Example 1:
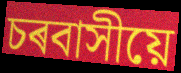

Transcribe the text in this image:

চৰবাসীয়ে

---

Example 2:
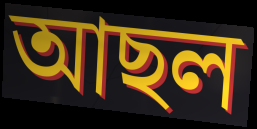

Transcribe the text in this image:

আছল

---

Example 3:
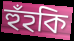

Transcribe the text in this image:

হুঁহকি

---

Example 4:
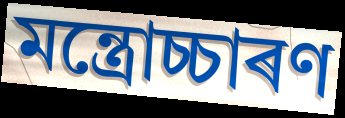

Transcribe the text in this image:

মন্ত্ৰোচ্চাৰণ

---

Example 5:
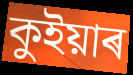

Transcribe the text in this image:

কুইয়াৰ